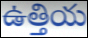
ఉత్తియ